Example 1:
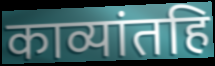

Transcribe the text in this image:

काव्यांतहि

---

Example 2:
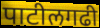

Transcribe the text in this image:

पाटीलगढी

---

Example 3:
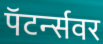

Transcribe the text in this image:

पॅटर्न्सवर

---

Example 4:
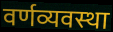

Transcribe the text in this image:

वर्णव्यवस्था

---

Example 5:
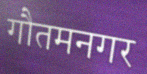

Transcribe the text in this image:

गौतमनगर